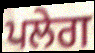
ਪਲੇਗ